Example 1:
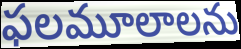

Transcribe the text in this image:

ఫలమూలాలను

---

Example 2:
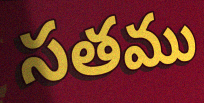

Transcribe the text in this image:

సతము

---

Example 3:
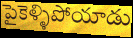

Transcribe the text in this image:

పైకెళ్ళిపోయాడు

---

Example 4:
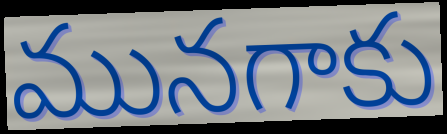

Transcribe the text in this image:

మునగాకు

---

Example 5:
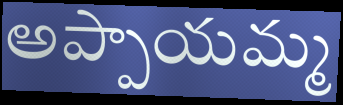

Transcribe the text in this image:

అప్పాయమ్మ